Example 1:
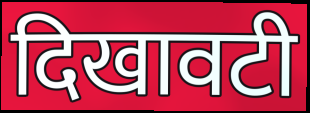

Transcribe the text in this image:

दिखावटी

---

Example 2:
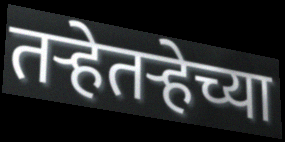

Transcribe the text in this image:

तऱ्हेतऱ्हेच्या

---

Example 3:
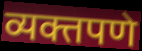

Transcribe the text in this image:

व्यक्तपणे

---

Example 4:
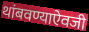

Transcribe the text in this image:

थांबवण्याऐवजी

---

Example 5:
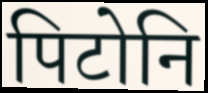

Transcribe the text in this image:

पिटोनि